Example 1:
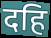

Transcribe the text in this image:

दहि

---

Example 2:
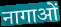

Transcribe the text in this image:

नागाओं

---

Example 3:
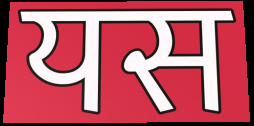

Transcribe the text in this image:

यस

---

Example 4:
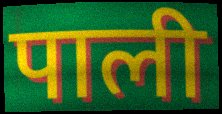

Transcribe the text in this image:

पाली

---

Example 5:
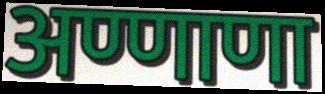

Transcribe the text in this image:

अण्णाणा